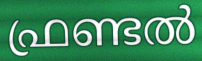
ഫ്രണ്ടൽ